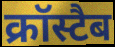
क्रॉस्टैब